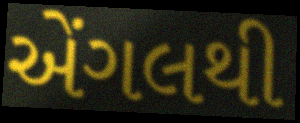
એંગલથી